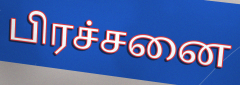
பிரச்சனை